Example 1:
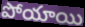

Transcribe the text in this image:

పోయాయి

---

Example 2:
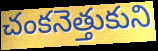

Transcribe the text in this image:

చంకనెత్తుకుని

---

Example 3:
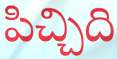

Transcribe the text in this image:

పిచ్చిది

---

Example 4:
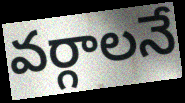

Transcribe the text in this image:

వర్గాలనే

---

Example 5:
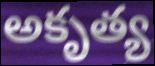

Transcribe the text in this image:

అకృత్య